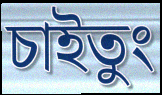
চাইতুং